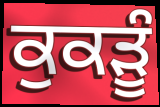
ਕੁਕੜੂੰ